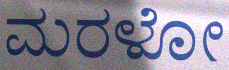
ಮರಳೋ